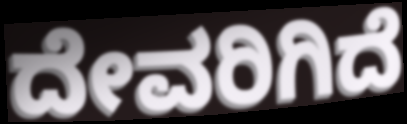
ದೇವರಿಗಿದೆ